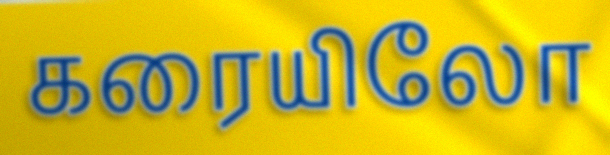
கரையிலோ